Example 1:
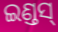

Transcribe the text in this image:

ଇଣ୍ଡସ୍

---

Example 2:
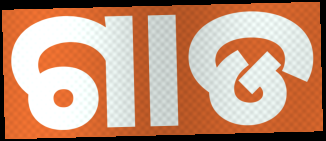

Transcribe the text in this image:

ଗାଡ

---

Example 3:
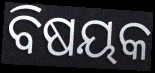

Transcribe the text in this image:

ବିଷୟକ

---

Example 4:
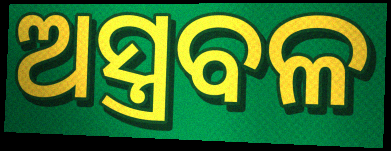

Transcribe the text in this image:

ଅସ୍ତ୍ରବଳ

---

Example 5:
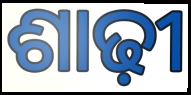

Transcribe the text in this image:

ଶାଢ଼ୀ